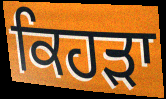
ਕਿਹੜਾ